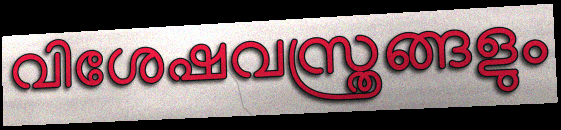
വിശേഷവസ്ത്രങ്ങളും